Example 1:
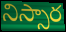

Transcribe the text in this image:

నిస్సార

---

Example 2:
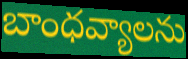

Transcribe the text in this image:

బాంధవ్యాలను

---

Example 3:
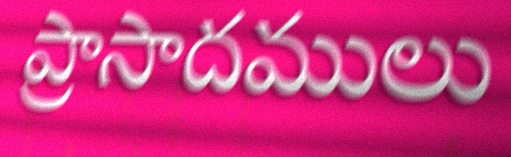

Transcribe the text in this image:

ప్రాసాదములు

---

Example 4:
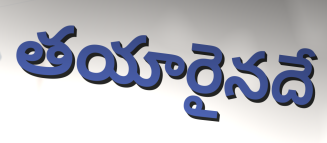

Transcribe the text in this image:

తయారైనదే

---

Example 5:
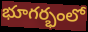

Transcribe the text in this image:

భూగర్భంలో